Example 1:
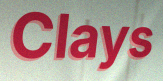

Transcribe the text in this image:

Clays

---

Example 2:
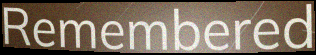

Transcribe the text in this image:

Remembered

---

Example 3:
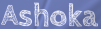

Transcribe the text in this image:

Ashoka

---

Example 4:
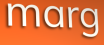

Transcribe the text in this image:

marg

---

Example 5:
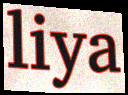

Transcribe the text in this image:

liya